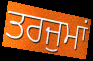
ਤਰਜੁਮਾਂ